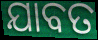
ଯାବତ